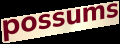
possums